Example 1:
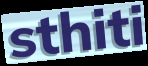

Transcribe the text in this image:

sthiti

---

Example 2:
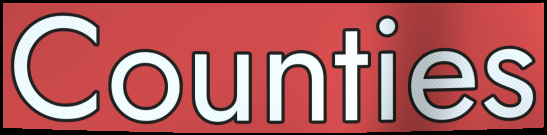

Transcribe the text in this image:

Counties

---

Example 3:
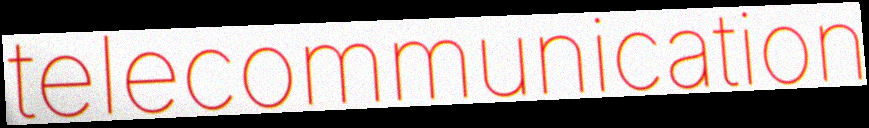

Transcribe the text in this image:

telecommunication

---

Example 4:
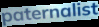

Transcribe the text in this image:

paternalist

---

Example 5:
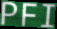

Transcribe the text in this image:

PFI